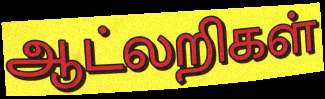
ஆட்லறிகள்